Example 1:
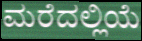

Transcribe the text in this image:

ಮರೆದಲ್ಲಿಯೆ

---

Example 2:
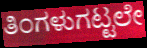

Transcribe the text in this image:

ತಿಂಗಳುಗಟ್ಟಲೇ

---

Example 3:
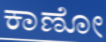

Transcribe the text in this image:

ಕಾಣೋ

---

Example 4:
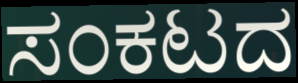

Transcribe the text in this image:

ಸಂಕಟದ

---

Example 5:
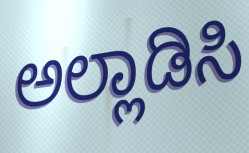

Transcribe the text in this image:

ಅಲ್ಲಾಡಿಸಿ